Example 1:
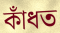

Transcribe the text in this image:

কাঁধত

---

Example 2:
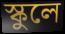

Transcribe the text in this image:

স্কুলে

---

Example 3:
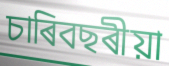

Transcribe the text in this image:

চাৰিবছৰীয়া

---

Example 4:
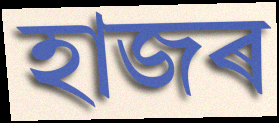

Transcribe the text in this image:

হাজৰ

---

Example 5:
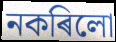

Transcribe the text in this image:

নকৰিলো